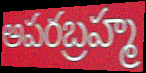
అపరబ్రహ్మ